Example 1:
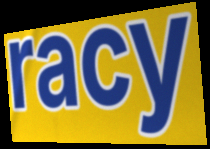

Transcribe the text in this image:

racy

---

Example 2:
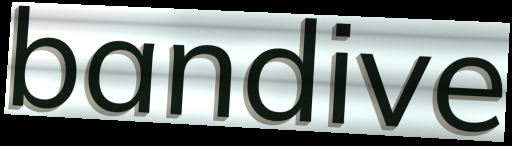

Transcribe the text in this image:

bandive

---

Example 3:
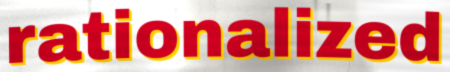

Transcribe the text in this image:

rationalized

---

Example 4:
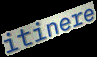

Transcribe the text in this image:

itinere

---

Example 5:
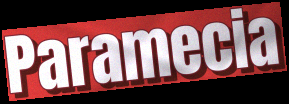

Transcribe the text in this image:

Paramecia